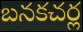
బనకచర్ల